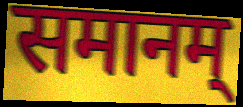
समानम्